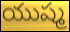
యుష్మ